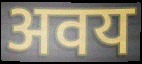
अवय